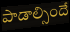
పాడాల్సిందే